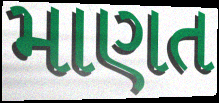
માણત